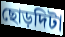
ছোড়দিটা